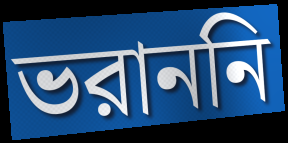
ভরাননি